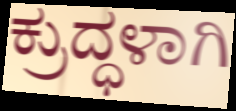
ಕ್ರುದ್ಧಳಾಗಿ